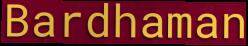
Bardhaman